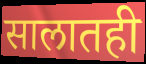
सालातही